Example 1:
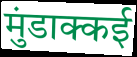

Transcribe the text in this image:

मुंडाक्कई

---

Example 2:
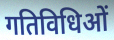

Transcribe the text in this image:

गतिविधिओं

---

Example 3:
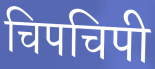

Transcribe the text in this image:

चिपचिपी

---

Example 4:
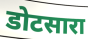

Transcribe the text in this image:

डोटसारा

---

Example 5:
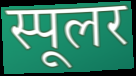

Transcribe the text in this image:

स्पूलर